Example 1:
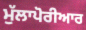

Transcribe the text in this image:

ਮੁੱਲਾਪੋਰੀਆਰ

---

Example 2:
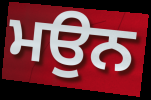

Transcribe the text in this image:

ਮਉਨ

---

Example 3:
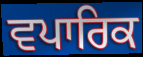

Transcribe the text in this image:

ਵਪਾਰਿਕ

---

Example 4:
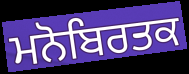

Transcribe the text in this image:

ਮਨੋਬਿਰਤਕ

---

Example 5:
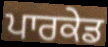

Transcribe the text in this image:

ਪਾਰਕੇਡ